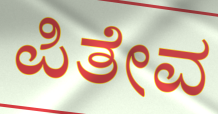
ಪಿತೇವ